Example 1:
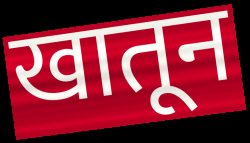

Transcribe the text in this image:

खातून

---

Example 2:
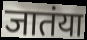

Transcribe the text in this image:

जातंया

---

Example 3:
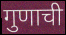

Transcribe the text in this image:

गुणाची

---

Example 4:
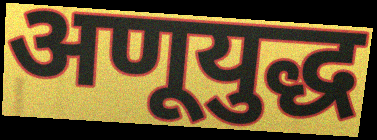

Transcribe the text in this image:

अणूयुद्ध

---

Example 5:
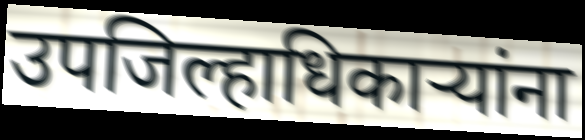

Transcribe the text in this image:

उपजिल्हाधिकाऱ्यांना